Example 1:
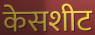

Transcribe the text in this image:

केसशीट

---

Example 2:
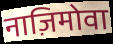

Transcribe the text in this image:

नाज़िमोवा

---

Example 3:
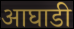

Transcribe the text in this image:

आघाडी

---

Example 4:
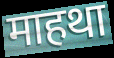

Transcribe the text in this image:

माहथा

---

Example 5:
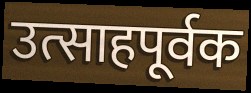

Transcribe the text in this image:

उत्‍साहपूर्वक